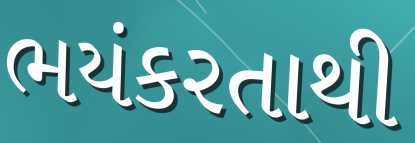
ભયંકરતાથી